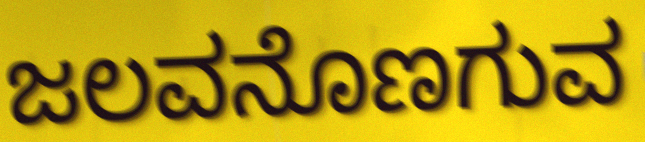
ಜಲವನೊಣಗುವ